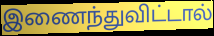
இணைந்துவிட்டால்